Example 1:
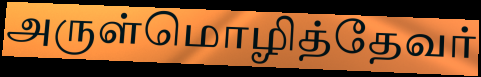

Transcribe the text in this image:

அருள்மொழித்தேவர்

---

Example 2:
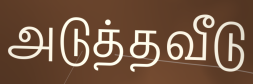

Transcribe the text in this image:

அடுத்தவீடு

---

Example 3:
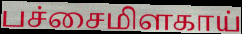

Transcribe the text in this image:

பச்சைமிளகாய்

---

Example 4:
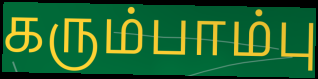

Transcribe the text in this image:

கரும்பாம்பு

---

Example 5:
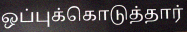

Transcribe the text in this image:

ஒப்புக்கொடுத்தார்